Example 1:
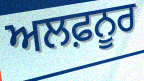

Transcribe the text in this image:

ਅਲਫ਼ਨੂਰ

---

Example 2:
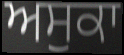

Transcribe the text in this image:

ਅਸੁਕਾ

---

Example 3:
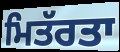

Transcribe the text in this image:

ਮਿਤੱਰਤਾ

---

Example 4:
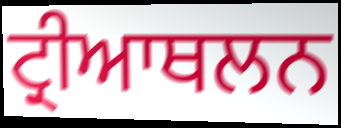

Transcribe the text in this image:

ਟ੍ਰੀਆਥਲਨ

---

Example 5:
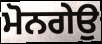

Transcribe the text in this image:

ਮੋਨਗੇਉ